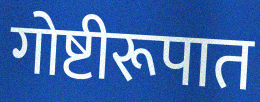
गोष्टीरूपात